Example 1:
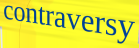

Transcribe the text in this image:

contraversy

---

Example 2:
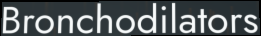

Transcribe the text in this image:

Bronchodilators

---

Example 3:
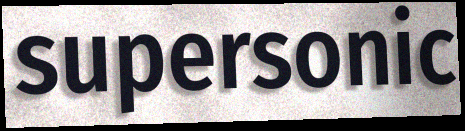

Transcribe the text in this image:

supersonic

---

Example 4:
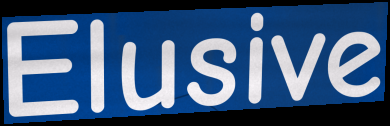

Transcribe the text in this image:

Elusive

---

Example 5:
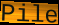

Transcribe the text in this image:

Pile